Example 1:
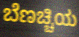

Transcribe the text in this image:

ಬೆಣಚ್ಚಿಯ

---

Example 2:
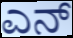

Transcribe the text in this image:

ಎನ್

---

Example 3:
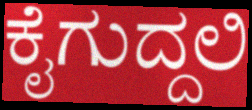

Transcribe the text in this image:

ಕೈಗುದ್ದಲಿ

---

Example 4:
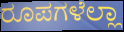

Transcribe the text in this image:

ರೂಪಗಳೆಲ್ಲಾ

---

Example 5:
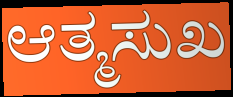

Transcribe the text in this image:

ಆತ್ಮಸುಖ